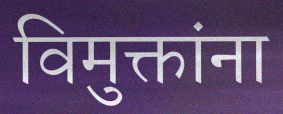
विमुक्तांना